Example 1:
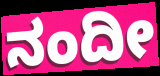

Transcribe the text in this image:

ನಂದೀ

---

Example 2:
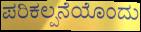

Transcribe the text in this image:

ಪರಿಕಲ್ಪನೆಯೊಂದು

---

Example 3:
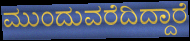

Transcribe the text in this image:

ಮುಂದುವರೆದಿದ್ದಾರೆ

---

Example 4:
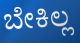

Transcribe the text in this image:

ಬೇಕಿಲ್ಲ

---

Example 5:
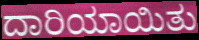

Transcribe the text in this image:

ದಾರಿಯಾಯಿತು